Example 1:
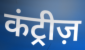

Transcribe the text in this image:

कंट्रीज़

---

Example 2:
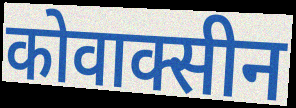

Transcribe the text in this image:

कोवाक्सीन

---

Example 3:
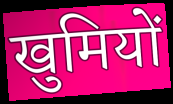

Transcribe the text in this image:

खुमियों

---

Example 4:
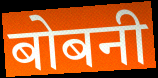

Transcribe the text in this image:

बोबनी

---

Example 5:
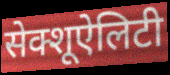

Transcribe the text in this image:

सेक्शूऐलिटी